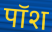
पॉश